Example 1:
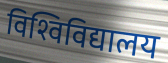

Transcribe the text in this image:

विश्विविद्यालय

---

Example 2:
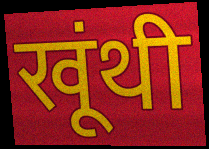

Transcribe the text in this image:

खूंथी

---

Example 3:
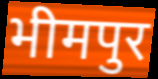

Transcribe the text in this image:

भीमपुर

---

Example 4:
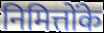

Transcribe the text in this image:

निमित्तोंके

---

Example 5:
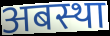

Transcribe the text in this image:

अबस्था